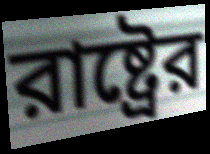
রাষ্ট্রের